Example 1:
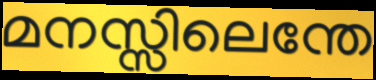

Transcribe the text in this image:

മനസ്സിലെന്തേ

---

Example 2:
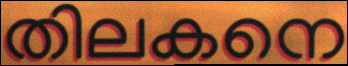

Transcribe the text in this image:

തിലകനെ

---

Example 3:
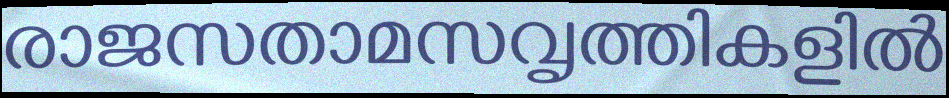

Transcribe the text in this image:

രാജസതാമസവൃത്തികളിൽ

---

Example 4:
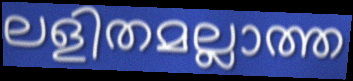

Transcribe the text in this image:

ലളിതമല്ലാത്ത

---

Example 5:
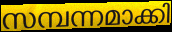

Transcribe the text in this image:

സമ്പന്നമാക്കി